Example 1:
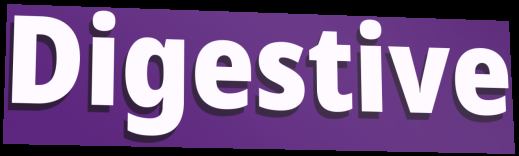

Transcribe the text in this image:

Digestive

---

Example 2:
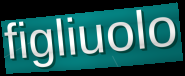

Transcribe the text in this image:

figliuolo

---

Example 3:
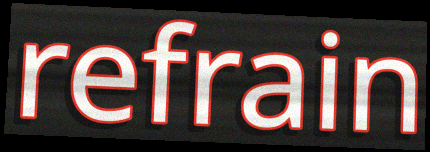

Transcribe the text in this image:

refrain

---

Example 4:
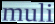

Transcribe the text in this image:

muli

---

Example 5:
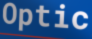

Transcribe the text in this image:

Optic